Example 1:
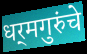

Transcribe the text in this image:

धर्मगुरुंचे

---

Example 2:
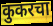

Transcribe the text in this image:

कुकरचा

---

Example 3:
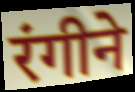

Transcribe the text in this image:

रंगीने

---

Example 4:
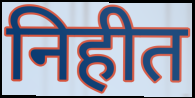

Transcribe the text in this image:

निहीत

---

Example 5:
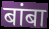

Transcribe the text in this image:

बांबा